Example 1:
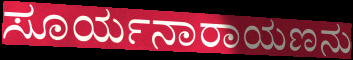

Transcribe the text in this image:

ಸೂರ್ಯನಾರಾಯಣನು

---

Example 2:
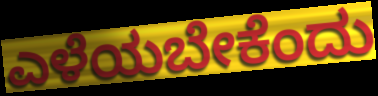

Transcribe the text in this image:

ಎಳೆಯಬೇಕೆಂದು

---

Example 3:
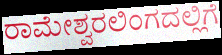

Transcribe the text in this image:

ರಾಮೇಶ್ವರಲಿಂಗದಲ್ಲಿಗೆ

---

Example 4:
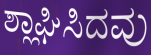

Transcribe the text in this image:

ಶ್ಲಾಘಿಸಿದವು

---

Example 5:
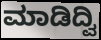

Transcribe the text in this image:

ಮಾಡಿದ್ವಿ